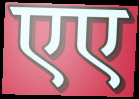
एए